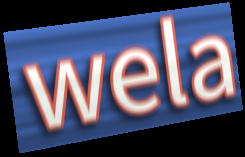
wela